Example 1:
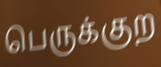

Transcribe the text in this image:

பெருக்குற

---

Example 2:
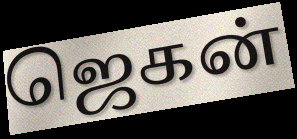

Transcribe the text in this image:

ஜெகன்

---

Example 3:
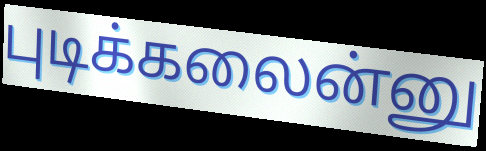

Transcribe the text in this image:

புடிக்கலைன்னு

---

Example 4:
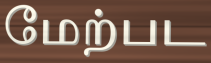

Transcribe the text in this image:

மேற்பட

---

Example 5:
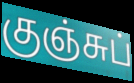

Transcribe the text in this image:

குஞ்சுப்